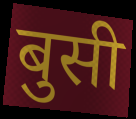
बुसी